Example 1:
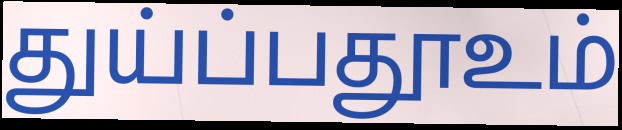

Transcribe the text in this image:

துய்ப்பதூஉம்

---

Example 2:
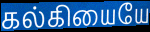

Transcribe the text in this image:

கல்கியையே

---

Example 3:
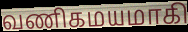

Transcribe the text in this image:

வணிகமயமாகி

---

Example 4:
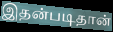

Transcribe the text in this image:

இதன்படிதான்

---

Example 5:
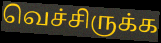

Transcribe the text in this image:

வெச்சிருக்க